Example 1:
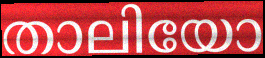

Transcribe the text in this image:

താലിയോ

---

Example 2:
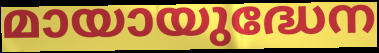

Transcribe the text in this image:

മായായുദ്ധേന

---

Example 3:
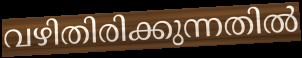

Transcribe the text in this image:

വഴിതിരിക്കുന്നതിൽ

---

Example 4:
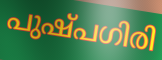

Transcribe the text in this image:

പുഷ്പഗിരി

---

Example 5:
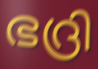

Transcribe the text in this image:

ഭദ്രി